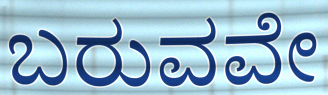
ಬರುವವೇ